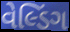
વેલ્ડિંગ